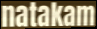
natakam